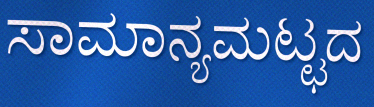
ಸಾಮಾನ್ಯಮಟ್ಟದ